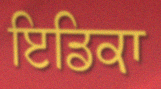
ਇਡਿਕਾ